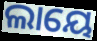
ଲାୟେ